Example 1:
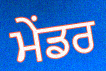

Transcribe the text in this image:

ਮੇਂਡਰ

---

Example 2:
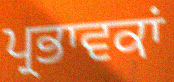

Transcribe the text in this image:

ਪ੍ਰਭਾਵਕਾਂ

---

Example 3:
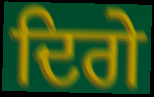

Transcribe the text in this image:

ਦਿਗੇ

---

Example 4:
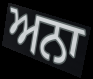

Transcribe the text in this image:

ਅਨਾ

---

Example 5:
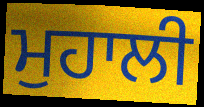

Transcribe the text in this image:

ਮੁਹਾਲੀ